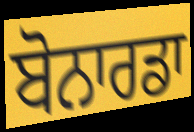
ਬੋਨਾਰਡਾ